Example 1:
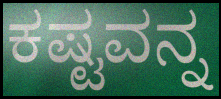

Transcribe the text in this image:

ಕಷ್ಟವನ್ನ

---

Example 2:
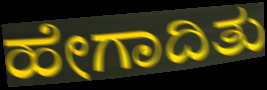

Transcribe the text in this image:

ಹೇಗಾದಿತು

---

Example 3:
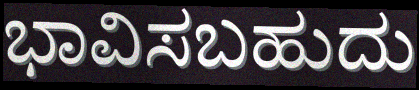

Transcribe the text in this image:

ಭಾವಿಸಬಹುದು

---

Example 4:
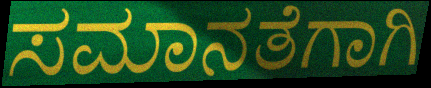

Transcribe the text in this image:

ಸಮಾನತೆಗಾಗಿ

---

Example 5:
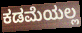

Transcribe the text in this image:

ಕಡಮೆಯಲ್ಲ